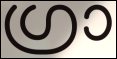
ഗ്രാ